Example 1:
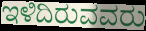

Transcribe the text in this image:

ಇಳಿದಿರುವವರು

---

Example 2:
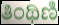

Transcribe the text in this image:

ತಿಂಥಿಣಿ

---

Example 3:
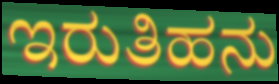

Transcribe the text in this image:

ಇರುತಿಹನು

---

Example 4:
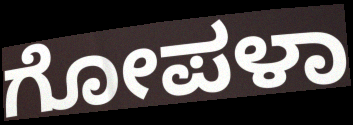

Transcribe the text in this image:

ಗೋಪಳಾ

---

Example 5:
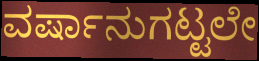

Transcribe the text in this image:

ವರ್ಷಾನುಗಟ್ಟಲೇ